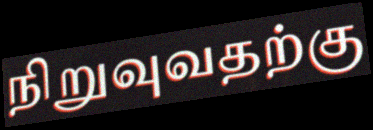
நிறுவுவதற்கு